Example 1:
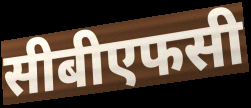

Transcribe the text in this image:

सीबीएफसी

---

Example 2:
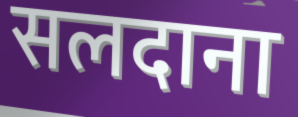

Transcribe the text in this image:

सलदाना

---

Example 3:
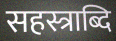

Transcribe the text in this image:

सहस्त्राब्दि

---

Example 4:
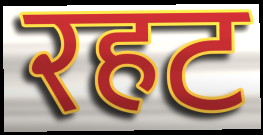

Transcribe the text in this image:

रहट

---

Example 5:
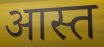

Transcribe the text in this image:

आस्त